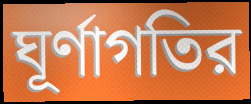
ঘূর্ণাগতির